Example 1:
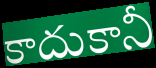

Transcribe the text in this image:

కాదుకానీ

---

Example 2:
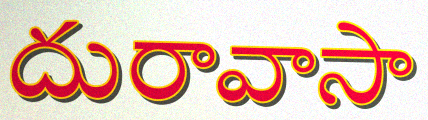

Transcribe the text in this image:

దురావాసా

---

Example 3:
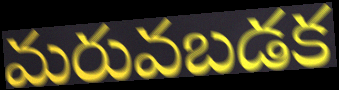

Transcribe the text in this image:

మరువబడక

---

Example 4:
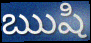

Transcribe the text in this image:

ఋషి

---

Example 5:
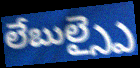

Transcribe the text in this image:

లేబుల్స్పై